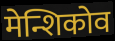
मेन्शिकोव